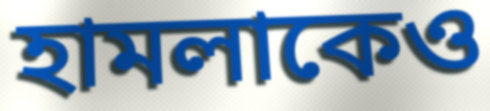
হামলাকেও